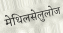
मेथिलसेलुलोज